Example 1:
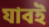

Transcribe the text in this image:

যাবই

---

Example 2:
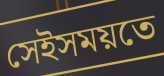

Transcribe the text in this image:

সেইসময়তে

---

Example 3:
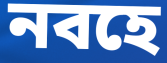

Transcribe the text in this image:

নবহে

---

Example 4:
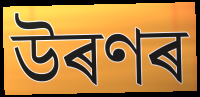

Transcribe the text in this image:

উৰণৰ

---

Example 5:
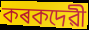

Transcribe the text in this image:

কৰকদেৱী